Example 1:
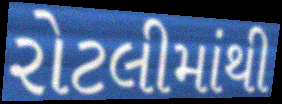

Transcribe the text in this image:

રોટલીમાંથી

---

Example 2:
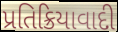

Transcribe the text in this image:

પ્રતિક્રિયાવાદી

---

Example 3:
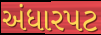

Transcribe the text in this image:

અંધારપટ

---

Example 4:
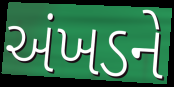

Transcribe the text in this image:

અંખડને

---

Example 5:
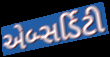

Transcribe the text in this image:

એબ્સર્ડિટી